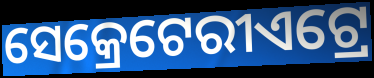
ସେକ୍ରେଟେରୀଏଟ୍ରେ